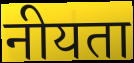
नीयता